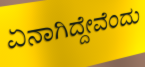
ಏನಾಗಿದ್ದೇವೆಂದು